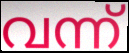
വന്ന്